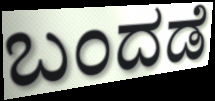
ಬಂದಡೆ